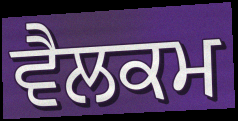
ਵੈਲਕਮ